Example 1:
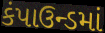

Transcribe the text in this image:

કંપાઉન્ડમાં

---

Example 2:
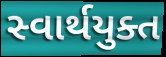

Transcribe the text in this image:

સ્વાર્થયુક્ત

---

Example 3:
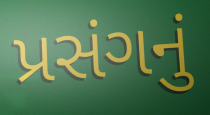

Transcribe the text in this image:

પ્રસંગનું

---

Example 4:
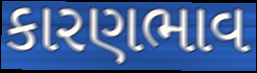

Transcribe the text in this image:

કારણભાવ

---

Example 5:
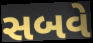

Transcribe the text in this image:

સબવે